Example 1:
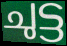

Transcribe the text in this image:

ചുട്ട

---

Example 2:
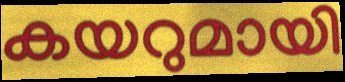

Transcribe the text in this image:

കയറുമായി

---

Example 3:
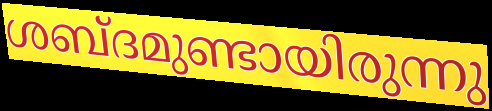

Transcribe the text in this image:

ശബ്ദമുണ്ടായിരുന്നു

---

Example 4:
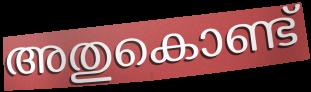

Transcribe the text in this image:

അതുകൊണ്ട്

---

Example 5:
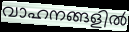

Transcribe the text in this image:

വാഹനങ്ങളിൽ